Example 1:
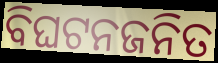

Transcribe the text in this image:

ବିଘଟନଜନିତ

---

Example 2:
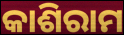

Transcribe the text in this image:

କାଶିରାମ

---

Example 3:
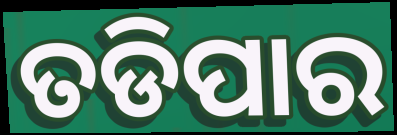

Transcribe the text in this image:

ତଡିପାର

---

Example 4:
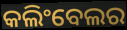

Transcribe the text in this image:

କଲିଂବେଲର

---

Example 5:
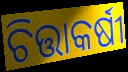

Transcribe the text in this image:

ଚିତ୍ତାକର୍ଷୀ